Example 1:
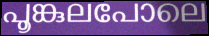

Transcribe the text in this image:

പൂങ്കുലപോലെ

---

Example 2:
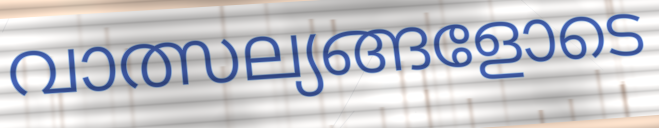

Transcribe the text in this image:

വാത്സല്യങ്ങളോടെ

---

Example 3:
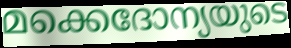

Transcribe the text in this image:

മക്കെദോന്യയുടെ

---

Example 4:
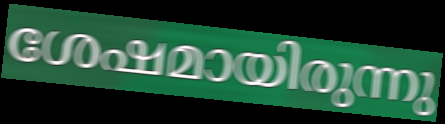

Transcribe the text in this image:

ശേഷമായിരുന്നു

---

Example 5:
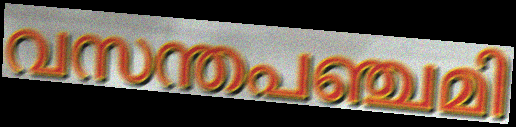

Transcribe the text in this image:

വസന്തപഞ്ചമി